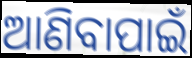
ଆଣିବାପାଇଁ